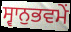
ਸ੍ਵਾਨੁਭਵਮੇਂ